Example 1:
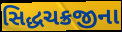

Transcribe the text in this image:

સિદ્ધચક્રજીના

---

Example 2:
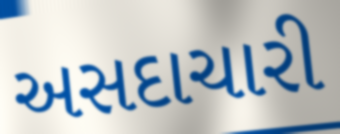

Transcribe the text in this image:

અસદાચારી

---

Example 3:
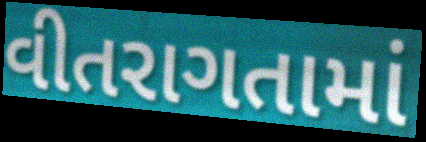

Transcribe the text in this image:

વીતરાગતામાં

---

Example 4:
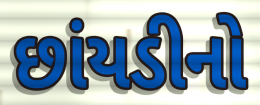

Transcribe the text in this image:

છાંયડીનો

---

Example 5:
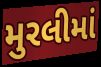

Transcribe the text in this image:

મુરલીમાં